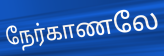
நேர்காணலே